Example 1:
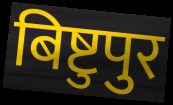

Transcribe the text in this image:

बिष्टुपुर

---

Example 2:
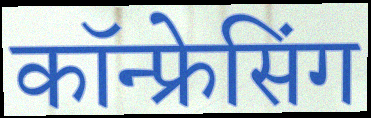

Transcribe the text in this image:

कॉन्फ्रेसिंग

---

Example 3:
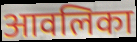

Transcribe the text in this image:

आवलिका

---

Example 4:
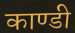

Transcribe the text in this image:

काण्डी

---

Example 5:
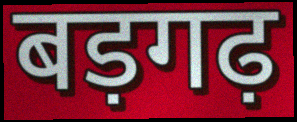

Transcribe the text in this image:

बड़गढ़